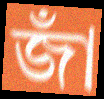
জাঁ